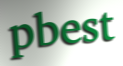
pbest